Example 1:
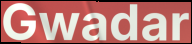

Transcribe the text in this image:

Gwadar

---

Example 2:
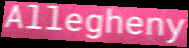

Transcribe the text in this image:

Allegheny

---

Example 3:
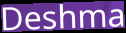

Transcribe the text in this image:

Deshma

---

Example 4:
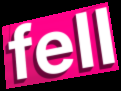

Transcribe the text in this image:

fell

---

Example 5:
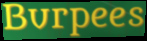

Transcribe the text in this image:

Burpees